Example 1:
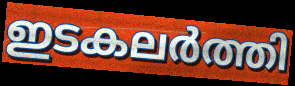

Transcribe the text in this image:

ഇടകലർത്തി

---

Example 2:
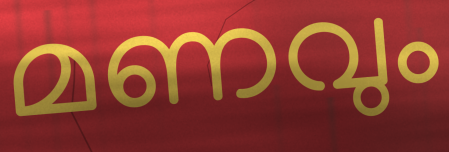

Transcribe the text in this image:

മണവും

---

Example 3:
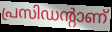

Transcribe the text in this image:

പ്രസിഡന്റാണ്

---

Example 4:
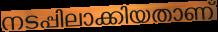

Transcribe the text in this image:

നടപ്പിലാക്കിയതാണ്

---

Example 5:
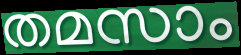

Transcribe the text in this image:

തമസാം